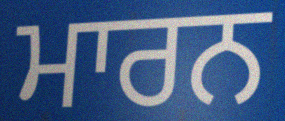
ਮਾਰਨ